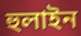
হুলাইন